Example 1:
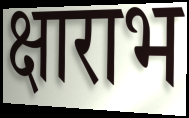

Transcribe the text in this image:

क्षाराभ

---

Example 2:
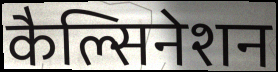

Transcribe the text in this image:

कैल्सिनेशन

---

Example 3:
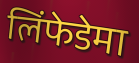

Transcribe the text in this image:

लिंफेडेमा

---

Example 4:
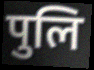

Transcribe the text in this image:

पुलि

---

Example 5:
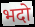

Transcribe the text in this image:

भदो